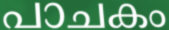
പാചകം